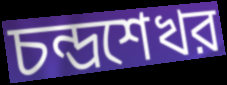
চন্দ্রশেখর